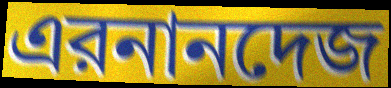
এরনানদেজ